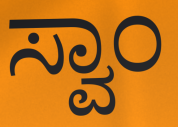
ಸ್ವಾಂ